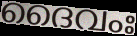
ദൈവംഃ